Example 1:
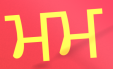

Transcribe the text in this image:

ਮਮ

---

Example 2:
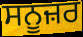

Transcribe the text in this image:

ਸਨੂਜ਼ਰ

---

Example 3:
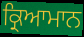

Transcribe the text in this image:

ਕ੍ਰਿਆਮਾਨ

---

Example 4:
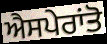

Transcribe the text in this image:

ਐਸਪੇਰਾਂਤੋ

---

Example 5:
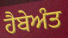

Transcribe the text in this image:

ਹੈਬੇਅੰਤ